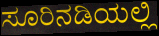
ಸೂರಿನಡಿಯಲ್ಲಿ